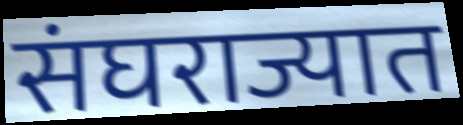
संघराज्यात